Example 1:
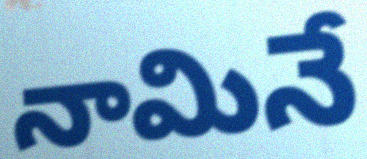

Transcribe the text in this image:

నామినే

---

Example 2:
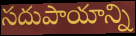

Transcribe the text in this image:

సదుపాయాన్ని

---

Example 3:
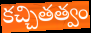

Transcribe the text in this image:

కచ్చితత్వం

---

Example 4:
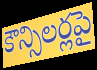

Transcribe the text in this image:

కౌన్సిలర్లపై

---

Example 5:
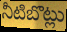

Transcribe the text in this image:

నీటిబొట్లు